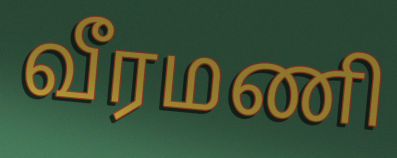
வீரமணி